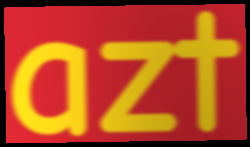
azt